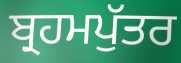
ਬ੍ਰਹਮਪੁੱਤਰ